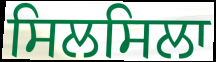
ਸਿਲਸਿਲਾ